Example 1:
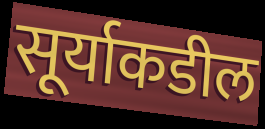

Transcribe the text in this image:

सूर्याकडील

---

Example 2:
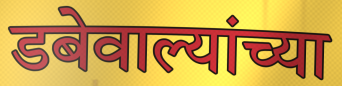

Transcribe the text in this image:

डबेवाल्यांच्या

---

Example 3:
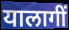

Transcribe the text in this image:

यालागीं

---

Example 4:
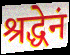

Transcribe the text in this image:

श्रद्धेनं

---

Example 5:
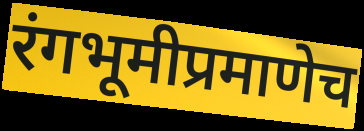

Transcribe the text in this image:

रंगभूमीप्रमाणेच